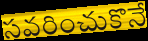
సవరించుకొనే